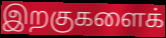
இறகுகளைக்